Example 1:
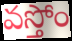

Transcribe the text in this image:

వస్తోం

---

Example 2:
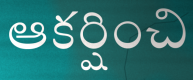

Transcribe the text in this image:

ఆకర్షించి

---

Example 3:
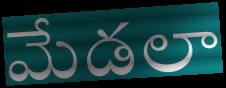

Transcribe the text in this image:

మేడలా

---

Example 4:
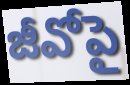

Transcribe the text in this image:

జీవోపై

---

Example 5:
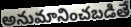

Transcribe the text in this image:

అనుమానించబడితే